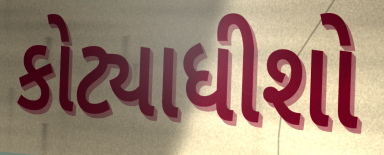
કોટ્યાધીશો